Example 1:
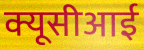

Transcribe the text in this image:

क्यूसीआई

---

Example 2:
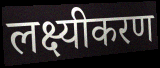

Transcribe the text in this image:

लक्ष्यीकरण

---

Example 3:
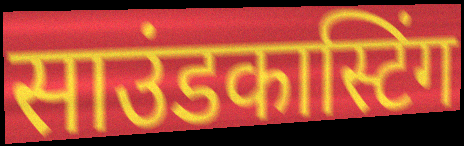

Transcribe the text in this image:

साउंडकास्टिंग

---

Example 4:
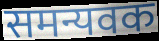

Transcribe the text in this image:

समन्यवक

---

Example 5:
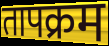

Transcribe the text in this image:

तापक्रम